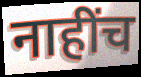
नाहींच